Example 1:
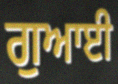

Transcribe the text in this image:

ਗੁਆਈ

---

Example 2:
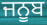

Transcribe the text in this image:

ਜਨੂਬ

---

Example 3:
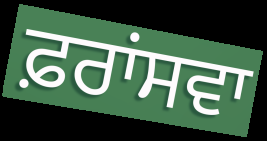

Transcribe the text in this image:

ਫ਼ਰਾਂਸਵਾ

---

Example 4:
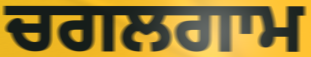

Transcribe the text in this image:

ਚਗਲਗਾਮ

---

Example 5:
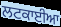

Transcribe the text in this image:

ਲਟਕਾਈਆ